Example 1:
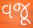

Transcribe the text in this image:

વજૂ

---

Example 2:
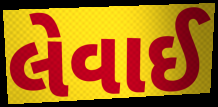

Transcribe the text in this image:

લેવાઈ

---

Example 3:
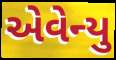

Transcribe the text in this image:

એવેન્યુ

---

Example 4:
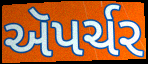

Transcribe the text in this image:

ઍપર્ચર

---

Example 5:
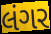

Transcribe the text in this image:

લંગર